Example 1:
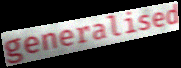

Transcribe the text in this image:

generalised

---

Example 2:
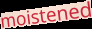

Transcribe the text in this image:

moistened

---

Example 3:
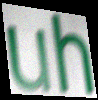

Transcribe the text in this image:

uh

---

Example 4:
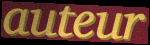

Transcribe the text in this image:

auteur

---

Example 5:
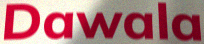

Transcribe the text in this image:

Dawala